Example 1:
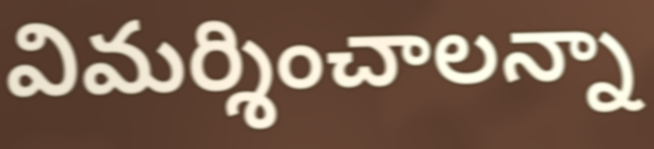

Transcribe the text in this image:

విమర్శించాలన్నా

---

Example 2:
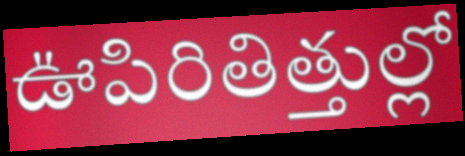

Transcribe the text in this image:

ఊపిరితిత్తుల్లో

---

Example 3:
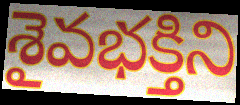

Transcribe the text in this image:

శైవభక్తిని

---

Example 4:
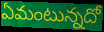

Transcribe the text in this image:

ఏమంటున్నదో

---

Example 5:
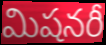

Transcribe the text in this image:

మిషనరీ